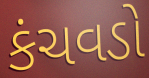
કંચવડો